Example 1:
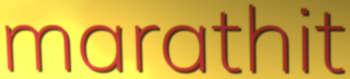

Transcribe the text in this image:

marathit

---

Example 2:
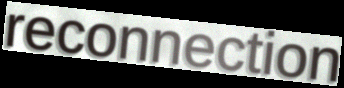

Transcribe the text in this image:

reconnection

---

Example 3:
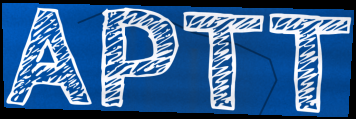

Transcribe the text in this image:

APTT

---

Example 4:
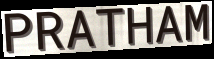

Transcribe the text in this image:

PRATHAM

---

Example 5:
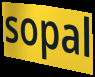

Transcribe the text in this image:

sopal